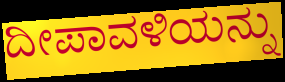
ದೀಪಾವಳಿಯನ್ನು